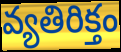
వ్యతిరిక్తం